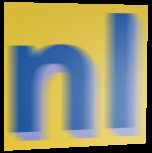
nl